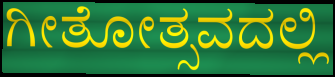
ಗೀತೋತ್ಸವದಲ್ಲಿ